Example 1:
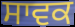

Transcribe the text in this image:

ਸਾਵਕ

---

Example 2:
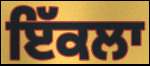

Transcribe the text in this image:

ਇੱਕਲਾ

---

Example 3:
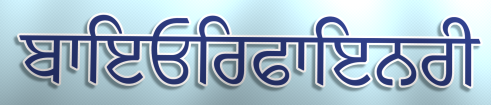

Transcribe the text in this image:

ਬਾਇਓਰਿਫਾਇਨਰੀ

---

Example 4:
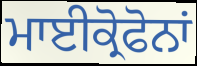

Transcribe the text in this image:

ਮਾਈਕ੍ਰੋਫੋਨਾਂ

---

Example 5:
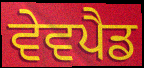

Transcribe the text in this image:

ਵੇਵਪੈਡ